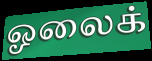
ஓலைக்